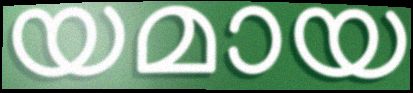
യമായ